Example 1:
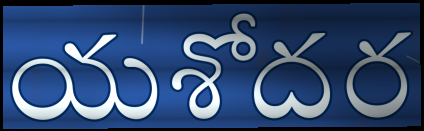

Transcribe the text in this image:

యశోదర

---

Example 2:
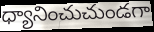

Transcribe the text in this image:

ధ్యానించుచుండగా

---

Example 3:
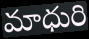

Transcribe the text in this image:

మాధురి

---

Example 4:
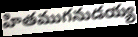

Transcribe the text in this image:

హితముగనుడయ్య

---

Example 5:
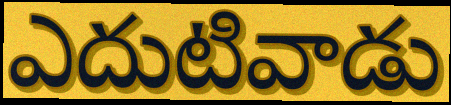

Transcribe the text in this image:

ఎదుటివాడు